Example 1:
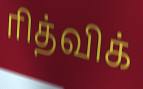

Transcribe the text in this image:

ரித்விக்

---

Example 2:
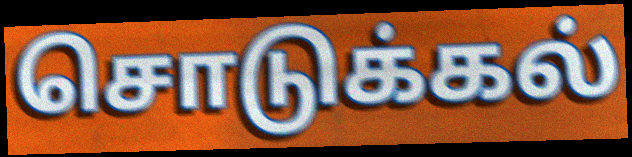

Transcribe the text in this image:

சொடுக்கல்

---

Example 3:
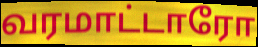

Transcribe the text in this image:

வரமாட்டாரோ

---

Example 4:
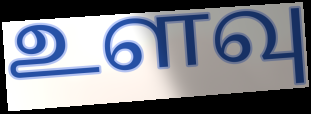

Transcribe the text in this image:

உளவு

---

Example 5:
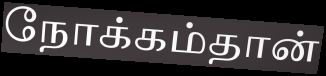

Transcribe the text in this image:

நோக்கம்தான்